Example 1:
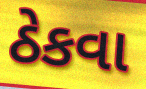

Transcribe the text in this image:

ઠેકવા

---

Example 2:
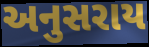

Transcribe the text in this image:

અનુસરાય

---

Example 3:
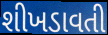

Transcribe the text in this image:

શીખડાવતી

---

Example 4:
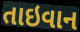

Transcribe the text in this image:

તાઇવાન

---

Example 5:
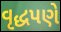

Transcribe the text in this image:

વૃદ્ધપણે